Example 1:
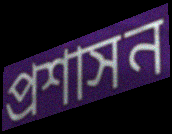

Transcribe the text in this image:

প্রশাসন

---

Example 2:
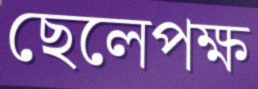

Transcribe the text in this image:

ছেলেপক্ষ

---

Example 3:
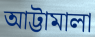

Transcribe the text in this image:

আট্টামালা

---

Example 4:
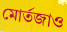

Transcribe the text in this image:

মোর্তজাও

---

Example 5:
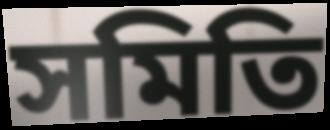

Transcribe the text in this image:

সমিতি